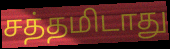
சத்தமிடாது